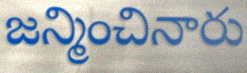
జన్మించినారు